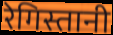
रेगिस्तानी